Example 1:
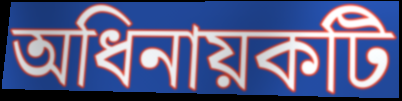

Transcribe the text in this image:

অধিনায়কটি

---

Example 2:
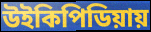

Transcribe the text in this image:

উইকিপিডিয়ায়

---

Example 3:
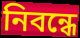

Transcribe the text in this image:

নিবন্ধে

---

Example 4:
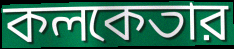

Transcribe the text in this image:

কলকেতার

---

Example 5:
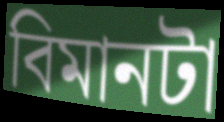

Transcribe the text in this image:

বিমানটা